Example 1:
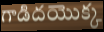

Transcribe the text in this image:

గాడిదయొక్క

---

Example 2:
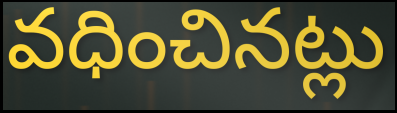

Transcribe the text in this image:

వధించినట్లు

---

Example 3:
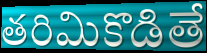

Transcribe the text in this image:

తరిమికొడితే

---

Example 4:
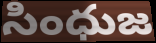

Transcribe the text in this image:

సింధుజ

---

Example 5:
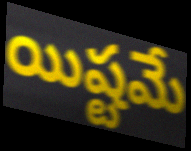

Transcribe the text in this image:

యిష్టమే